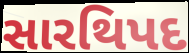
સારથિપદ